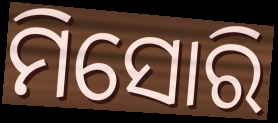
ମିସୋରି